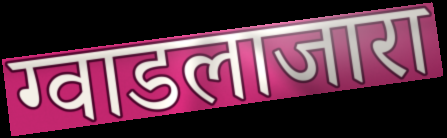
ग्वाडलाजारा